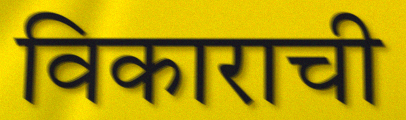
विकाराची